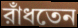
রাঁধতেন